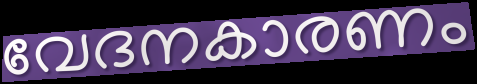
വേദനകാരണം